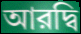
আরদ্বি